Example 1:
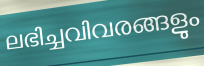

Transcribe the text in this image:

ലഭിച്ചവിവരങ്ങളും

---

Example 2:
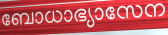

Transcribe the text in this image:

ബോധാഭ്യാസേന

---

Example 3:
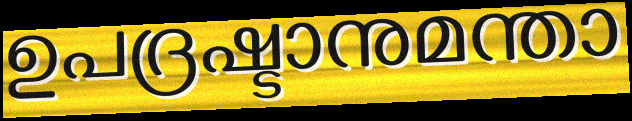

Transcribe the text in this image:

ഉപദ്രഷ്ടാനുമന്താ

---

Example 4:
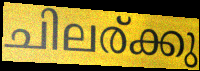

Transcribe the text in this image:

ചിലര്ക്കു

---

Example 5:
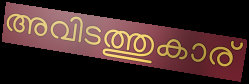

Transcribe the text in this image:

അവിടത്തുകാര്